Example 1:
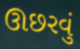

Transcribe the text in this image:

ઊછરવું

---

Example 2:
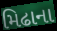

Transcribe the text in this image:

મિઢાના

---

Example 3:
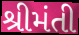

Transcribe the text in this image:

શ્રીમંતી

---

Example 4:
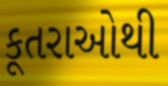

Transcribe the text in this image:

કૂતરાઓથી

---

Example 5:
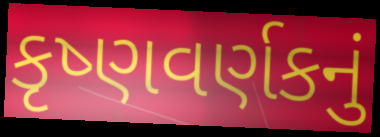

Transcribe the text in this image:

કૃષ્ણવર્ણકનું